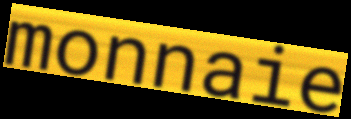
monnaie